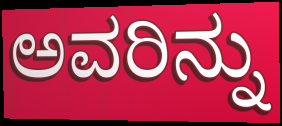
ಅವರಿನ್ನು